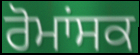
ਰੋਮਾਂਸਕ